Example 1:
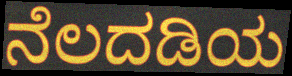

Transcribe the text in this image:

ನೆಲದಡಿಯ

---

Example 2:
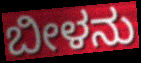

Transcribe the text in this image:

ಬೀಳನು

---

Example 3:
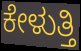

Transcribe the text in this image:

ಕೇಳುತ್ತಿ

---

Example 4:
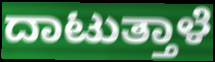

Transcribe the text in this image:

ದಾಟುತ್ತಾಳೆ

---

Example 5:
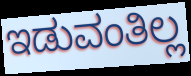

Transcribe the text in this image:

ಇಡುವಂತಿಲ್ಲ